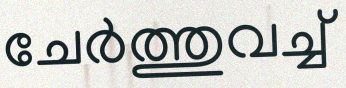
ചേർത്തുവച്ച്